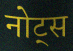
नोट्‌स